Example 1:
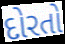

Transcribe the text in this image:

દોરતો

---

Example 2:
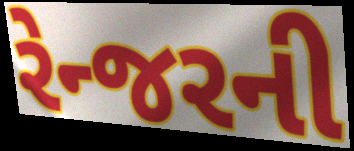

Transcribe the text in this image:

રેન્જરની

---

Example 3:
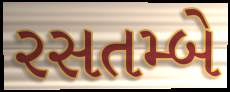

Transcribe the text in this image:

રસતમ્બે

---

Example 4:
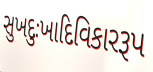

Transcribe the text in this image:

સુખદુઃખાદિવિકારરૂપ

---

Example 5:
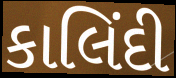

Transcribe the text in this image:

કાલિંદી